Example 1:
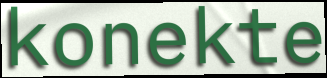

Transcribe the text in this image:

konekte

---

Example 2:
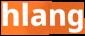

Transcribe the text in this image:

hlang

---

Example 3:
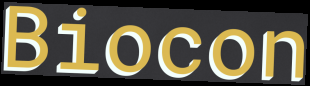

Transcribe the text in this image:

Biocon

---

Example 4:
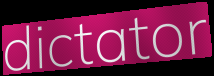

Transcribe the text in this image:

dictator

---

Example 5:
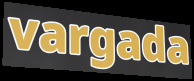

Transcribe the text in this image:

vargada